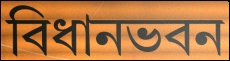
বিধানভবন